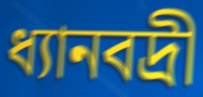
ধ্যানবদ্রী